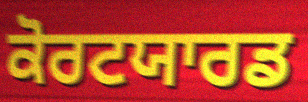
ਕੋਰਟਯਾਰਡ